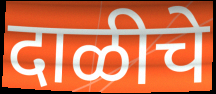
दाळीचे